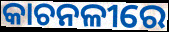
କାଚନଳୀରେ